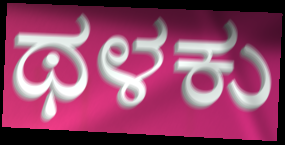
ಥಳಕು